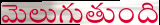
మెలుగుతుంది